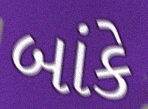
બાંકે